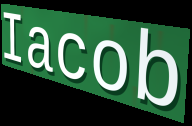
Iacob